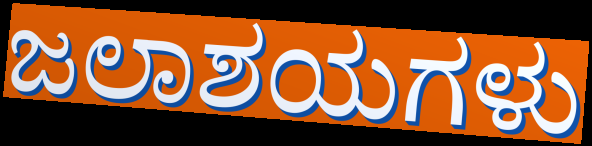
ಜಲಾಶಯಗಳು